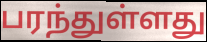
பரந்துள்ளது